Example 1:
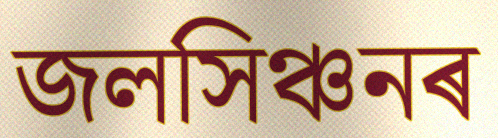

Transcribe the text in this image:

জলসিঞ্চনৰ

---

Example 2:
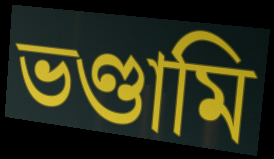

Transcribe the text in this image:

ভণ্ডামি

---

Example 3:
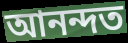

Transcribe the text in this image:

আনন্দত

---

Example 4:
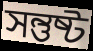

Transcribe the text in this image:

সন্তুষ্ট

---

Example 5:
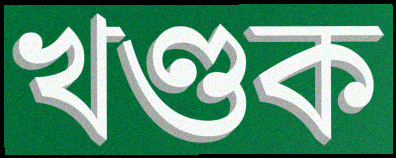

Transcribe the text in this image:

খণ্ডক